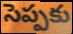
సెప్పకు